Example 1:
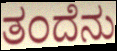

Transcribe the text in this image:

ತಂದೆನು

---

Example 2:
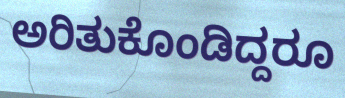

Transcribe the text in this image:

ಅರಿತುಕೊಂಡಿದ್ದರೂ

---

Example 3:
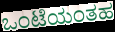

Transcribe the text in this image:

ಒಂಟೆಯಂತಹ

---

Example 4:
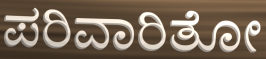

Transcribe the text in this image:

ಪರಿವಾರಿತೋ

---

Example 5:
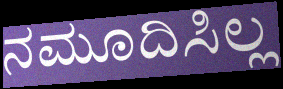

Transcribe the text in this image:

ನಮೂದಿಸಿಲ್ಲ